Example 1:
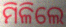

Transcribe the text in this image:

ମିଳିଲେ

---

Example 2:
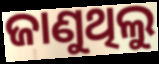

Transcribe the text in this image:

ଜାଣୁଥିଲୁ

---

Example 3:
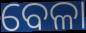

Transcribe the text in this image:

ବେଳା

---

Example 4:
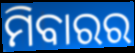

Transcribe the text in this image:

ମିବାରର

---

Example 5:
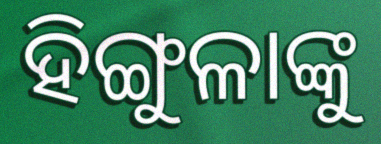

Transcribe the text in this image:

ହିଙ୍ଗୁଳାଙ୍କୁ